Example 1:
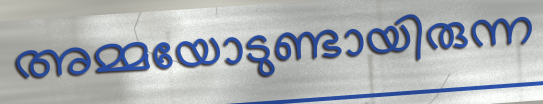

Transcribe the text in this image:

അമ്മയോടുണ്ടായിരുന്ന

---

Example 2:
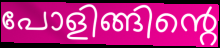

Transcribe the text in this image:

പോളിങ്ങിന്റെ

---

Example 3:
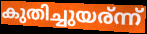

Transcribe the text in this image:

കുതിച്ചുയര്ന്ന്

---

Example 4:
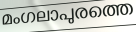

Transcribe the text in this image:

മംഗലാപുരത്തെ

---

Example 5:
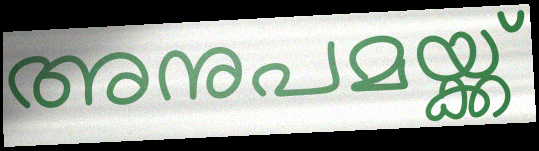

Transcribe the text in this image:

അനുപമയ്ക്ക്